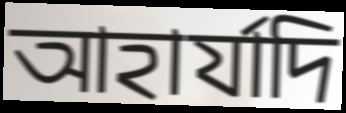
আহার্যাদি